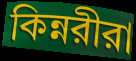
কিন্নরীরা